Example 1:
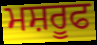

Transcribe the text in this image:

ਮਸ਼ਰੂਫ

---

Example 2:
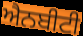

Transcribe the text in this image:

ਐਨਬੀਟੀ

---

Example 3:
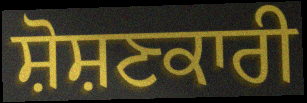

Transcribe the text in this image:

ਸ਼ੋਸ਼ਣਕਾਰੀ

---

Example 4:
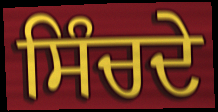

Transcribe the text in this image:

ਸਿੰਚਦੇ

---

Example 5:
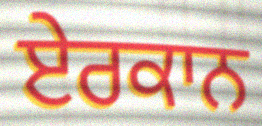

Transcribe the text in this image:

ਏਰਕਾਨ